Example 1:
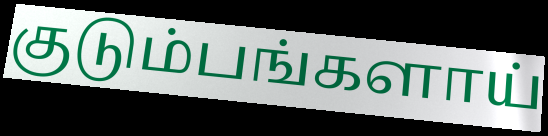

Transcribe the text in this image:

குடும்பங்களாய்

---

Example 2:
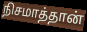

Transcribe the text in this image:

நிசமாத்தான்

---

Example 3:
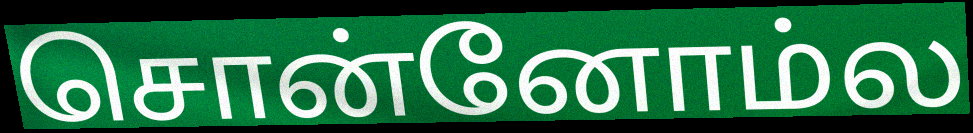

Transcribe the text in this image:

சொன்னோம்ல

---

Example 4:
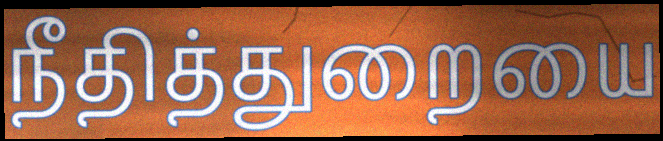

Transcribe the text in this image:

நீதித்துறையை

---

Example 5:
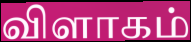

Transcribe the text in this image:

விளாகம்